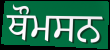
ਥੌਮਸਨ